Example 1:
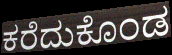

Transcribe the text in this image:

ಕರೆದುಕೊಂಡ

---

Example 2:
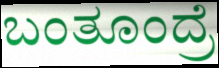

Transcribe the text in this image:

ಬಂತೂಂದ್ರೆ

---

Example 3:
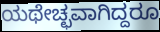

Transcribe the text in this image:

ಯಥೇಚ್ಛವಾಗಿದ್ದರೂ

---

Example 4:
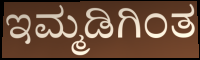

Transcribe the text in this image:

ಇಮ್ಮಡಿಗಿಂತ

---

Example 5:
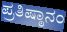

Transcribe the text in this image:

ಪ್ರತಿಷ್ಠಾನಂ